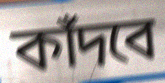
কাঁদবে